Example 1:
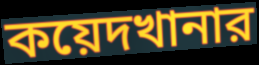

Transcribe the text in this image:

কয়েদখানার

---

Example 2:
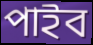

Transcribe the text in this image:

পাইব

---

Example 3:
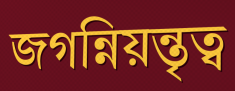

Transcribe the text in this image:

জগন্নিয়ন্তৃত্ব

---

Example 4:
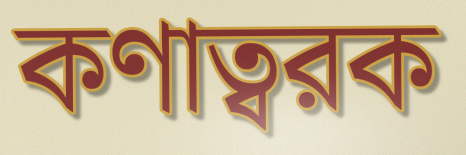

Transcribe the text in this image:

কণাত্বরক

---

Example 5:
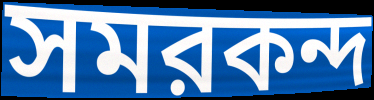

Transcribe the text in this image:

সমরকন্দ